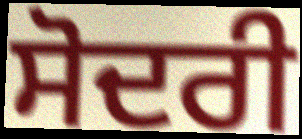
ਸੋਦਰੀ